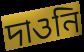
দাওনি